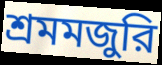
শ্রমমজুরি